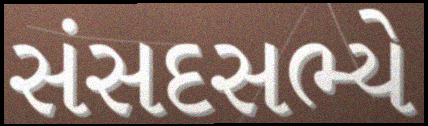
સંસદસભ્યે